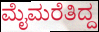
ಮೈಮರೆತಿದ್ದ